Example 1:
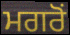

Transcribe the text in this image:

ਮਗਰੋਂ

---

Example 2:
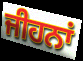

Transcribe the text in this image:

ਜੀਹਨਾਂ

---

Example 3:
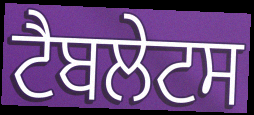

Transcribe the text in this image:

ਟੈਬਲੇਟਸ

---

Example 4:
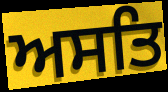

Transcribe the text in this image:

ਅਸਤਿ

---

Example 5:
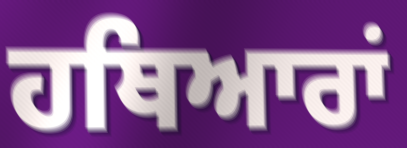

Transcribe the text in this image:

ਹਥਿਆਰਾਂ